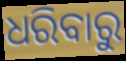
ଧରିବାରୁ